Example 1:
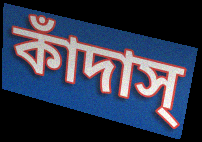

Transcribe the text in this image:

কাঁদাস্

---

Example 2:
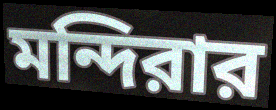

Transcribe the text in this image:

মন্দিরার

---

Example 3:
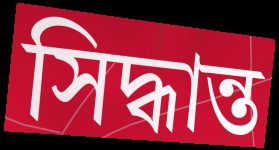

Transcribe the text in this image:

সিদ্ধান্ত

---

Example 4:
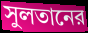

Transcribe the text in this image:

সুলতানের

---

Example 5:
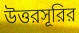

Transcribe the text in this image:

উত্তরসূরির